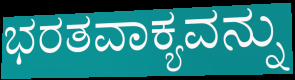
ಭರತವಾಕ್ಯವನ್ನು